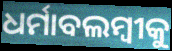
ଧର୍ମାବଲମ୍ବୀକୁ